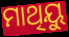
ମାଥିୟୁ